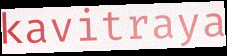
kavitraya